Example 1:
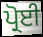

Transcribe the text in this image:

ਪ੍ਰੋਈ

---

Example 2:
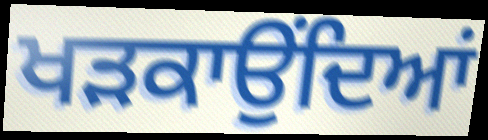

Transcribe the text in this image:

ਖੜਕਾਉਂਦਿਆਂ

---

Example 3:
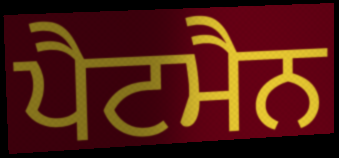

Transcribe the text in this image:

ਪੈਟਮੈਨ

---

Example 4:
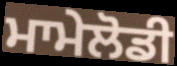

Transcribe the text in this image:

ਮਾਮੇਲੋਡੀ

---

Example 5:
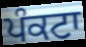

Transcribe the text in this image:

ਪੰਕਟਾ